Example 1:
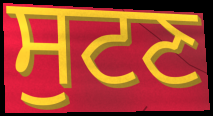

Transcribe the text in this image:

ਸੁਟਣ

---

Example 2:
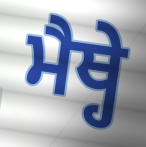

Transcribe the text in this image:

ਮੈਥ੍ਹੇ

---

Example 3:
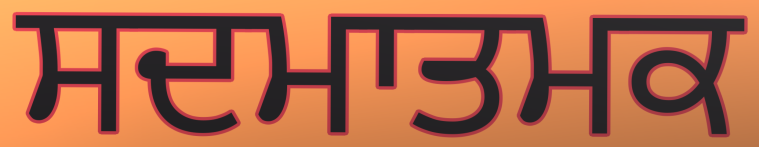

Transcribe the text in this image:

ਸਦਮਾਤਮਕ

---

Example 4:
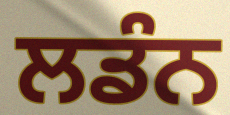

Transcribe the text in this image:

ਲਡੰਨ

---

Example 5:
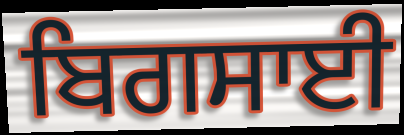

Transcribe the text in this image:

ਬਿਗਸਾਈ